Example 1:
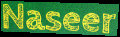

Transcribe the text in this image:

Naseer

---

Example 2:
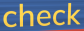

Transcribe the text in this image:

check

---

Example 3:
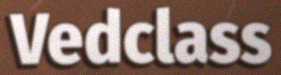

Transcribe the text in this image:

Vedclass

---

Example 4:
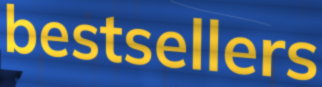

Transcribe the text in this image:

bestsellers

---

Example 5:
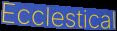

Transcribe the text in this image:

Ecclestical